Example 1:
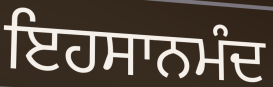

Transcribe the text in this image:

ਇਹਸਾਨਮੰਦ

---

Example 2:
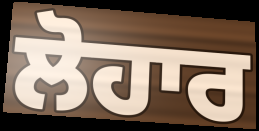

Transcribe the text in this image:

ਲੋਹਾਰ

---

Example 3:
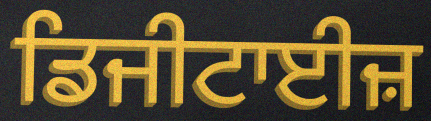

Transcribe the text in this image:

ਡਿਜੀਟਾਈਜ਼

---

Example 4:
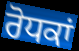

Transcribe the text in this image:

ਰੋਧਕਾਂ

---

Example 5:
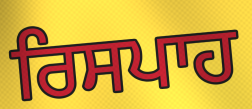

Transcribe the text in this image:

ਰਿਸਪਾਹ